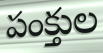
పంక్తుల